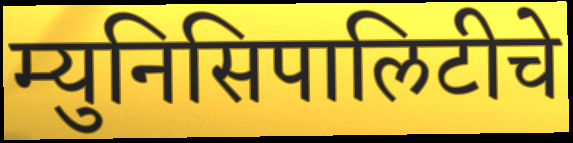
म्युनिसिपालिटीचे